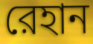
রেহান